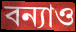
বন্যাও